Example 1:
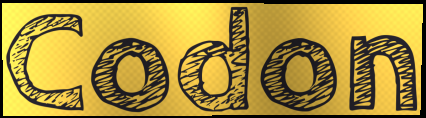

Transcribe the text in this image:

Codon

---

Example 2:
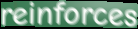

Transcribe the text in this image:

reinforces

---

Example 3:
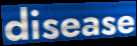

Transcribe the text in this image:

disease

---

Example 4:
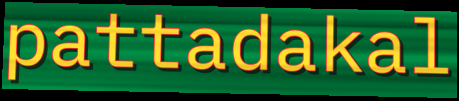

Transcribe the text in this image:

pattadakal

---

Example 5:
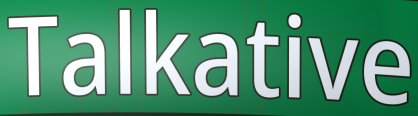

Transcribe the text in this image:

Talkative